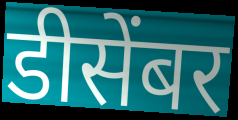
डीसेंबर